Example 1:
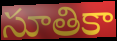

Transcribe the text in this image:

సూతికా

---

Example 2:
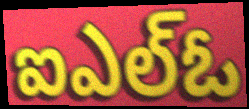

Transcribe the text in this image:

ఐఎల్ఓ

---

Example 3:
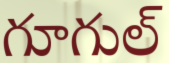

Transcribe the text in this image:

గూగుల్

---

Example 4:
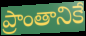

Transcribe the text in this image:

ప్రాంతానికే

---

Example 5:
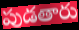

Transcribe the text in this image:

పుడతారు